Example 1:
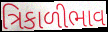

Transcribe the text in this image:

ત્રિકાળીભાવ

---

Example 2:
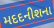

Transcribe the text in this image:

મદદનીશના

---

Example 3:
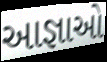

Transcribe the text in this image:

આજ્ઞાઓ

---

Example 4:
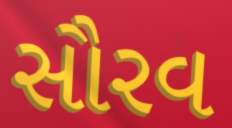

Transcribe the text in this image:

સૌરવ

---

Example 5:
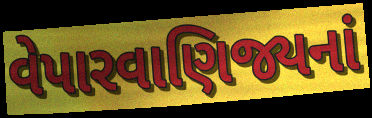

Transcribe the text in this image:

વેપારવાણિજ્યનાં